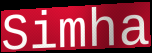
Simha